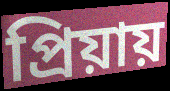
প্রিয়ায়